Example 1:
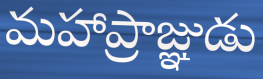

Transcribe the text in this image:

మహాప్రాజ్ఞుడు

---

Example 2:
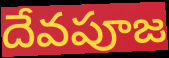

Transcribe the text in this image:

దేవపూజ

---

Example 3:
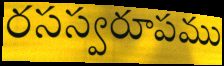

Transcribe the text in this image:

రసస్వరూపము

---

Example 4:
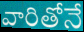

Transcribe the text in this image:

వారితోనే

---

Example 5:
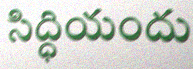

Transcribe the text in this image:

సిద్ధియందు